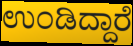
ಉಂಡಿದ್ದಾರೆ